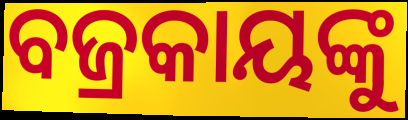
ବଜ୍ରକାୟଙ୍କୁ